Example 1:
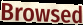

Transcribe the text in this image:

Browsed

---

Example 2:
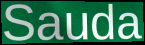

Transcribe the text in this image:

Sauda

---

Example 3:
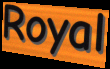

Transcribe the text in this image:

Royal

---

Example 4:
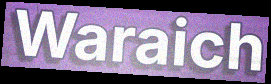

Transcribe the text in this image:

Waraich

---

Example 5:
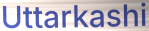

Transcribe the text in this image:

Uttarkashi